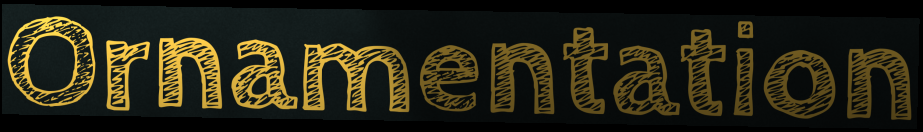
Ornamentation